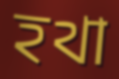
হথা